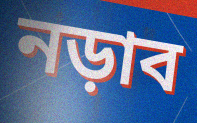
নড়াব